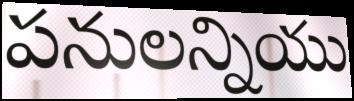
పనులన్నియు